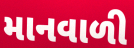
માનવાળી